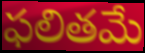
ఫలితమే